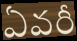
ఏవరీ